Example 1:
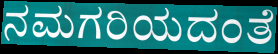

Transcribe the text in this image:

ನಮಗರಿಯದಂತೆ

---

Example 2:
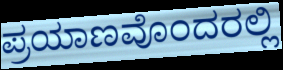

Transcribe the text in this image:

ಪ್ರಯಾಣವೊಂದರಲ್ಲಿ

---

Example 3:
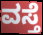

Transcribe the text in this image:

ವಸ್ತೆ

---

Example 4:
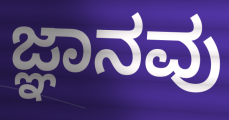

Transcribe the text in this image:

ಜ್ಞಾನವು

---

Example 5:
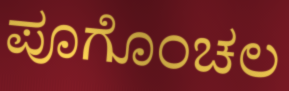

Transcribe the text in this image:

ಪೂಗೊಂಚಲ